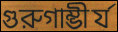
গুরুগাম্ভীর্য